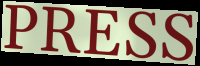
PRESS